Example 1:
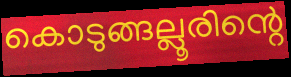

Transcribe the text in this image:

കൊടുങ്ങല്ലൂരിന്റെ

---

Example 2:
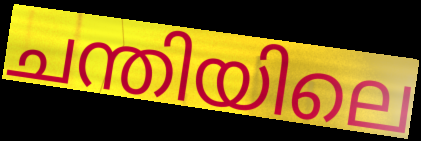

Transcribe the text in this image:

ചന്തിയിലെ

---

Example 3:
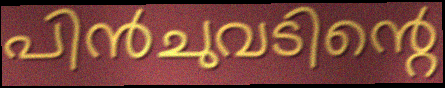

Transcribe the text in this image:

പിൻചുവടിന്റെ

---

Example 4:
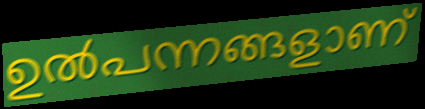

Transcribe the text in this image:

ഉൽപന്നങ്ങളാണ്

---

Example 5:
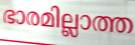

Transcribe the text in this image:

ഭാരമില്ലാത്ത